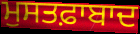
ਮੁਸਤਫ਼ਾਬਾਦ